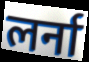
लर्ना